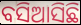
ବସିଆସିଛି